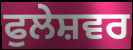
ਫੁਲੇਸ਼ਵਰ